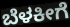
ಬೆಳಕೀಗೆ